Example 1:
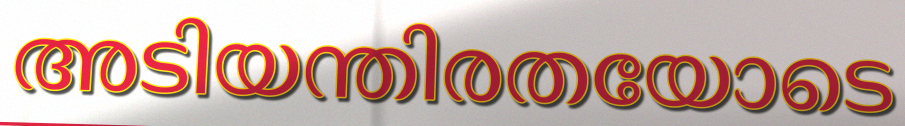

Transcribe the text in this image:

അടിയന്തിരതയോടെ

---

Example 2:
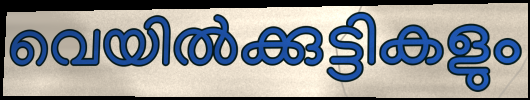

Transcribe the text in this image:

വെയിൽക്കുട്ടികളും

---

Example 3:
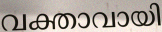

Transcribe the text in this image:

വക്താവായി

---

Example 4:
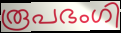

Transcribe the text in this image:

രൂപഭംഗി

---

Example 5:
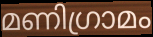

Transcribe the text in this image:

മണിഗ്രാമം